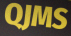
QJMS